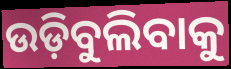
ଉଡ଼ିବୁଲିବାକୁ